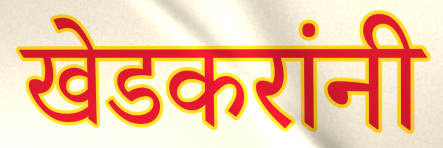
खेडकरांनी